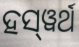
ହସ୍‌ୱର୍ଥ